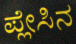
ಪ್ಲೇಸಿನ